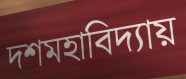
দশমহাবিদ্যায়